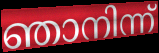
ഞാനിന്ന്